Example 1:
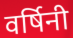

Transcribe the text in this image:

वर्षिनी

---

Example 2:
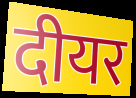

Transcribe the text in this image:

दीयर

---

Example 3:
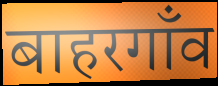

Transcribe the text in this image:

बाहरगाँव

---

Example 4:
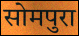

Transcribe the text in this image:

सोमपुरा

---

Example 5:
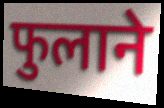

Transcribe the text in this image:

फुलाने